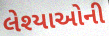
લેશ્યાઓની